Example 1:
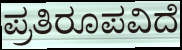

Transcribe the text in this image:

ಪ್ರತಿರೂಪವಿದೆ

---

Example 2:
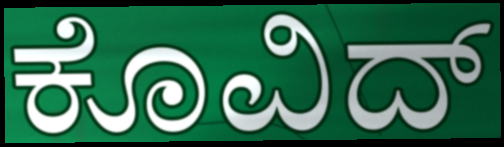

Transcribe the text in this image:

ಕೊವಿದ್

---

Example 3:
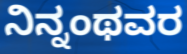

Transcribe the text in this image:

ನಿನ್ನಂಥವರ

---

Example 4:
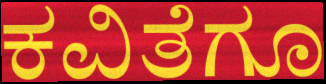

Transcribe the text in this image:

ಕವಿತೆಗೂ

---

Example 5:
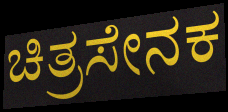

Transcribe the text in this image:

ಚಿತ್ರಸೇನಕ